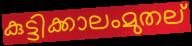
കുട്ടിക്കാലംമുതല്